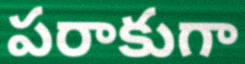
పరాకుగా